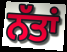
ਨੱਤਾਂ